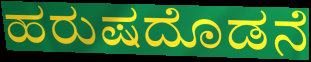
ಹರುಷದೊಡನೆ